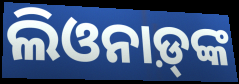
ଲିଓନାଡ଼୍‌ଙ୍କ